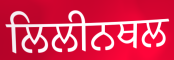
ਲਿਲੀਨਥਲ